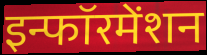
इन्फॉरमेंशन